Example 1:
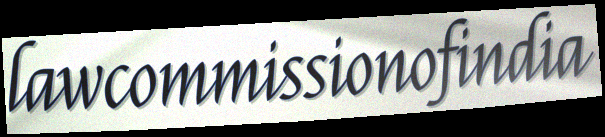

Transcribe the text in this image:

lawcommissionofindia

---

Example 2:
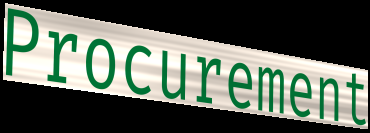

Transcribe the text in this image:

Procurement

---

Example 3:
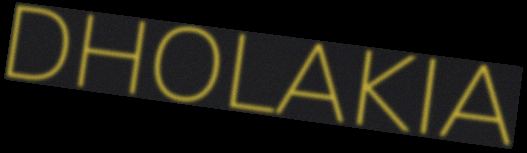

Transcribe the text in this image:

DHOLAKIA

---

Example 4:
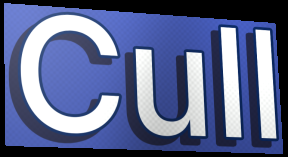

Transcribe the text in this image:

Cull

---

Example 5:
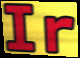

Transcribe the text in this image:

Ir